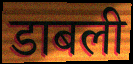
डाबली